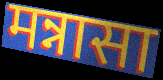
मन्नासा